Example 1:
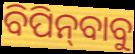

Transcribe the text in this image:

ବିପିନ୍‍ବାବୁ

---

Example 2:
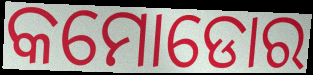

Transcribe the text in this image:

କମୋଡୋର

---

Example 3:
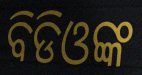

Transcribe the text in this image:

ବିଡିଓଙ୍କ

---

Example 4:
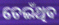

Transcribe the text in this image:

ଚେଇଁଥିବ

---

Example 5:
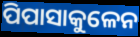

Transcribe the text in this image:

ପିପାସାକୁଳେନ